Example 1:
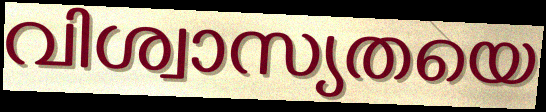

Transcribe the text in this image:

വിശ്വാസ്യതയെ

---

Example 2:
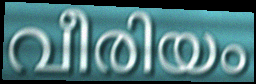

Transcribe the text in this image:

വീരിയം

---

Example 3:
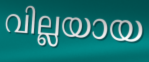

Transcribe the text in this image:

വില്ലയായ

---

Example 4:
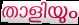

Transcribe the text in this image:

താളിയും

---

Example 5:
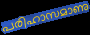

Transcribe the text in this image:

പരിഹാസമാണു